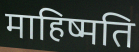
माहिष्मति